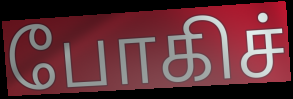
போகிச்